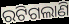
ରଟିଗଲାଣି